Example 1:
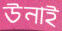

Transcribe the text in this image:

উনাই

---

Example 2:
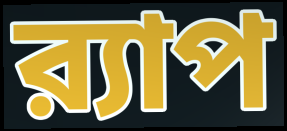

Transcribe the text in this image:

র‍্যাপ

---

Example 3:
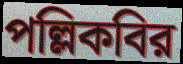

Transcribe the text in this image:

পল্লিকবির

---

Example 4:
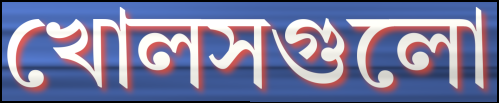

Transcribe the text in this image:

খোলসগুলো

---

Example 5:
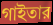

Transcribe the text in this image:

গাইতার